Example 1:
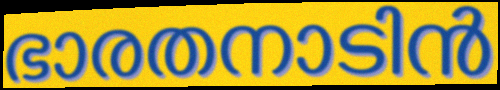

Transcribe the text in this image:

ഭാരതനാടിൻ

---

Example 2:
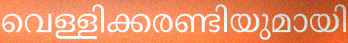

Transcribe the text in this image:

വെള്ളിക്കരണ്ടിയുമായി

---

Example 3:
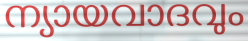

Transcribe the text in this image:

ന്യായവാദവും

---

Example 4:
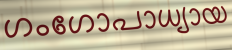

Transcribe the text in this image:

ഗംഗോപാധ്യായ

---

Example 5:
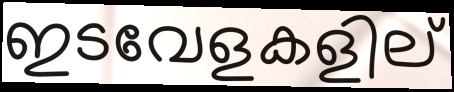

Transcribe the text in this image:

ഇടവേളകളില്